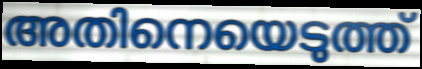
അതിനെയെടുത്ത്